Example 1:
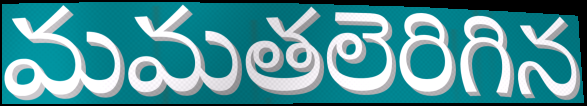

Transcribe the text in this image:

మమతలెరిగిన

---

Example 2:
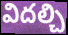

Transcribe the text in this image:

విదల్చి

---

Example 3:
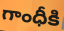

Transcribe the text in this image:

గాంధీకి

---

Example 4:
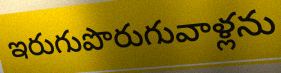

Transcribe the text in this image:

ఇరుగుపొరుగువాళ్లను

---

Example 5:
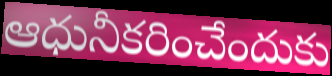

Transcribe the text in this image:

ఆధునీకరించేందుకు